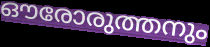
ഔരോരുത്തനും